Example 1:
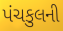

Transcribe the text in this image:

પંચકુલની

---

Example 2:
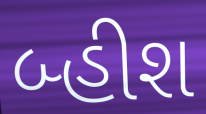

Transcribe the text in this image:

બ્હીશ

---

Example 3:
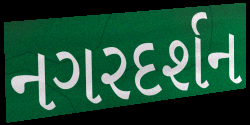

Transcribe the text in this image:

નગરદર્શન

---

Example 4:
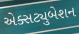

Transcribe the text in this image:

એક્સટ્યુબેશન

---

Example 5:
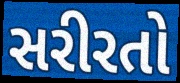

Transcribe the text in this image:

સરીરતો